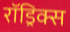
रॉड्रिक्स